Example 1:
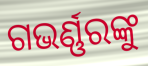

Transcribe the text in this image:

ଗଭର୍ଣ୍ଣରଙ୍କୁ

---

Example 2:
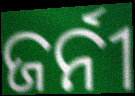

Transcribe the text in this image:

ଜର୍ନୀ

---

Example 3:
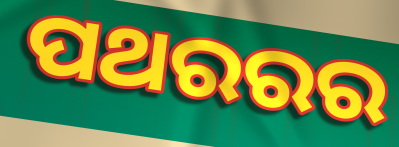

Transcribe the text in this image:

ପଥରରର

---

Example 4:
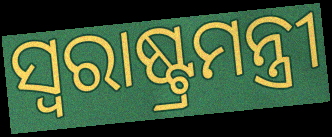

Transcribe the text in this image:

ସ୍ବରାଷ୍ଟ୍ରମନ୍ତ୍ରୀ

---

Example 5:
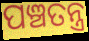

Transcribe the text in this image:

ପଞ୍ଚତନ୍ତ୍ର